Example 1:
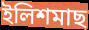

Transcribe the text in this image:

ইলিশমাছ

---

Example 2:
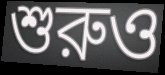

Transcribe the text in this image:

শুরুও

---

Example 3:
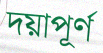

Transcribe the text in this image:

দয়াপূর্ণ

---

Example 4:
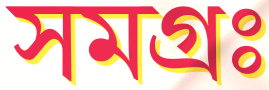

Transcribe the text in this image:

সমগ্রঃ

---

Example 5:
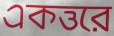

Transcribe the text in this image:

একত্তরে